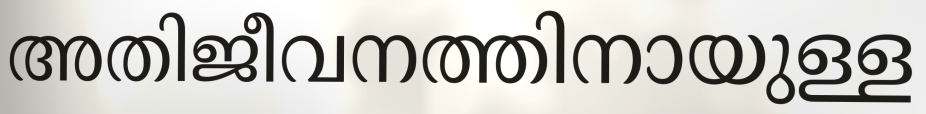
അതിജീവനത്തിനായുള്ള